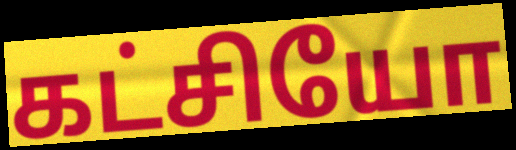
கட்சியோ